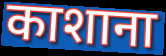
काशाना